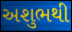
અશુભથી